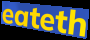
eateth